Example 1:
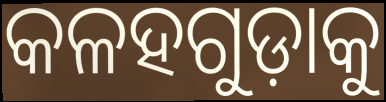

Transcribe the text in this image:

କଳହଗୁଡ଼ାକୁ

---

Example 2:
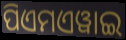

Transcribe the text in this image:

ପିଏମଏୱାଇ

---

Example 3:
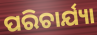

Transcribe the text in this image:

ପରିଚାର୍ଯ୍ୟା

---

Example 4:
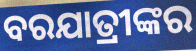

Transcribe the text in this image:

ବରଯାତ୍ରୀଙ୍କର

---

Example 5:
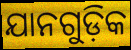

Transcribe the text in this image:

ଯାନଗୁଡ଼ିକ